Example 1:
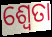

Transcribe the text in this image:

ଶ୍ୱେତା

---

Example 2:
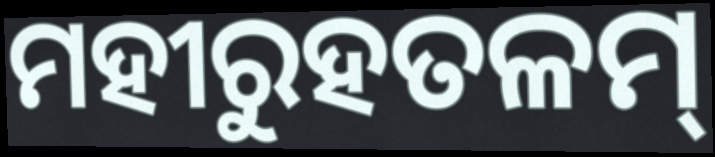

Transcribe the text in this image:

ମହୀରୁହତଳମ୍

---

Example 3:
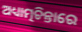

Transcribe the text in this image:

ଅଧ୍ୟାତ୍ମଚିନ୍ତାରେ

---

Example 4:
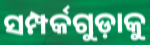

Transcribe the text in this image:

ସମ୍ପର୍କଗୁଡ଼ାକୁ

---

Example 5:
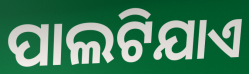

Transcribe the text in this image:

ପାଲଟିଯାଏ